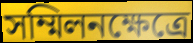
সম্মিলনক্ষেত্রে